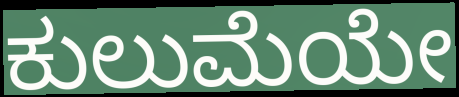
ಕುಲುಮೆಯೇ